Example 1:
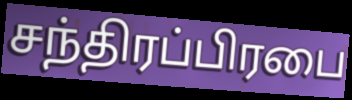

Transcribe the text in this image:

சந்திரப்பிரபை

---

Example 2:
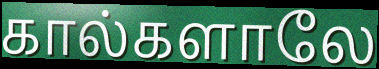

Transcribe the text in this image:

கால்களாலே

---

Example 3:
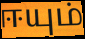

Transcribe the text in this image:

ஈயும்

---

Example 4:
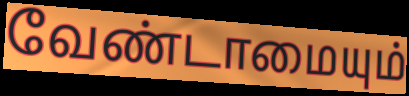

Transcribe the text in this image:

வேண்டாமையும்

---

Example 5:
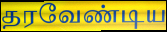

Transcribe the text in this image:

தரவேண்டிய